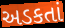
અડકતાં